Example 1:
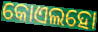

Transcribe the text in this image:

କୋଏଲହୋ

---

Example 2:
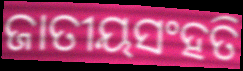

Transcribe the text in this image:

ଜାତୀୟସଂହତି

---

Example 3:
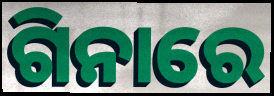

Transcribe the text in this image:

ଗିନାରେ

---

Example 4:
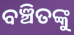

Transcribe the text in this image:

ବଞ୍ଚିତଙ୍କୁ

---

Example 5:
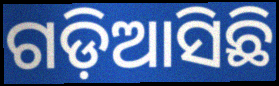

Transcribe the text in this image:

ଗଡ଼ିଆସିଛି